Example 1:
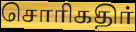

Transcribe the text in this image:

சொரிகதிர்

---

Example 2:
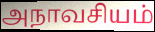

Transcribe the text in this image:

அநாவசியம்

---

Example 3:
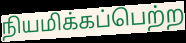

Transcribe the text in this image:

நியமிக்கப்பெற்ற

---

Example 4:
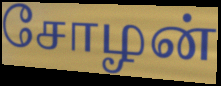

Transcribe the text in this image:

சோழன்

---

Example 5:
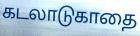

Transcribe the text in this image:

கடலாடுகாதை